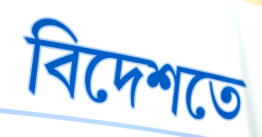
বিদেশতে